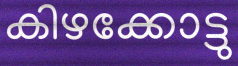
കിഴക്കോട്ടു